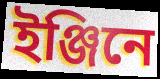
ইঞ্জিনে